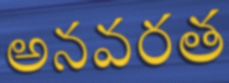
అనవరత